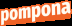
pompona